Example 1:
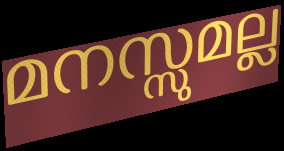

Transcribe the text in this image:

മനസ്സുമല്ല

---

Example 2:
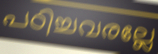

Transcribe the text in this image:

പഠിച്ചവരല്ലേ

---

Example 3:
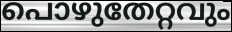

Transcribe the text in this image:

പൊഴുതേറ്റവും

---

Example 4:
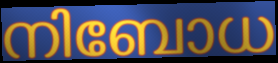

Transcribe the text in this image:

നിബോധ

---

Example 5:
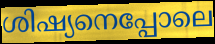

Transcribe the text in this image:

ശിഷ്യനെപ്പോലെ